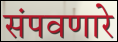
संपवणारे